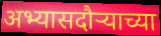
अभ्यासदौऱ्याच्या